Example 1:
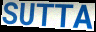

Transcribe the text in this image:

SUTTA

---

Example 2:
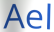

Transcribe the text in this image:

Ael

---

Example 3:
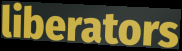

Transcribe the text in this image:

liberators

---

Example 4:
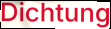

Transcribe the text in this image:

Dichtung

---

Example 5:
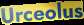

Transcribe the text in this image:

Urceolus